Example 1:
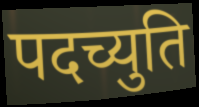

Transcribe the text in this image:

पदच्युति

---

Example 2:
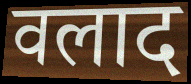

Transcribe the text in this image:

वलाद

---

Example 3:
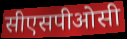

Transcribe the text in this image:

सीएसपीओसी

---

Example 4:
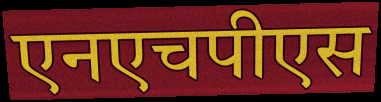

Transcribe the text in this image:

एनएचपीएस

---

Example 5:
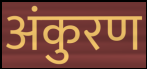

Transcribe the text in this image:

अंकुरण